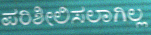
ಪರಿಶೀಲಿಸಲಾಗಿಲ್ಲ